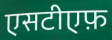
एसटीएफ़